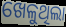
ଖେଳୁଥିଲା